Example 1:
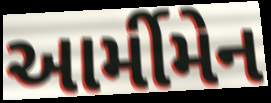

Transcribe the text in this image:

આર્મીમેન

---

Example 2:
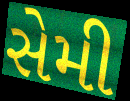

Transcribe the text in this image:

સેમી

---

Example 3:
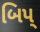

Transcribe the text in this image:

બિપ્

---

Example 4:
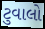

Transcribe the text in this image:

ટુવાલો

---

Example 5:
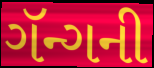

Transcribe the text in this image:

ગૅન્ગની